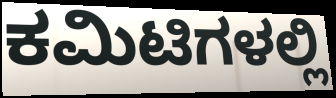
ಕಮಿಟಿಗಳಲ್ಲಿ